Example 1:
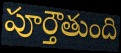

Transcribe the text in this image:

పూర్తౌతుంది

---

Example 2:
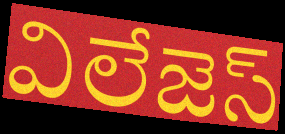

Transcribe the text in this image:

విలేజెస్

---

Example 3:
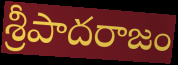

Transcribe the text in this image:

శ్రీపాదరాజం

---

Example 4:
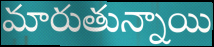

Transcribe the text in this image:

మారుతున్నాయి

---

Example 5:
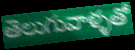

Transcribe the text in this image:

తెలుగువాళ్ళతో